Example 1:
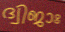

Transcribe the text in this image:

ദ്വിജാഃ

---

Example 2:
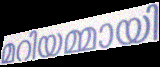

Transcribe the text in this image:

മറിയമ്മായി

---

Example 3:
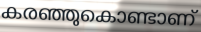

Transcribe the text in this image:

കരഞ്ഞുകൊണ്ടാണ്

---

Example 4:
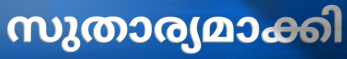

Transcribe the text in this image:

സുതാര്യമാക്കി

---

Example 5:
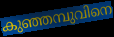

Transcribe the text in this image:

കുഞ്ഞമ്പുവിനെ